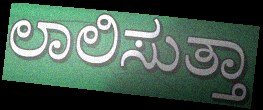
ಲಾಲಿಸುತ್ತಾ